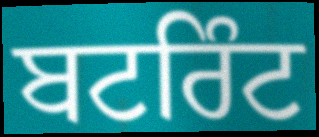
ਬਟਰਿੰਟ